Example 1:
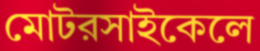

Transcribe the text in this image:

মোটরসাইকেলে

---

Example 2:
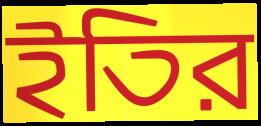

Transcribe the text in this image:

ইতির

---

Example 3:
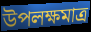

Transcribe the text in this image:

উপলক্ষমাত্র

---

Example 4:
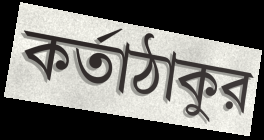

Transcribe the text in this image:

কর্তাঠাকুর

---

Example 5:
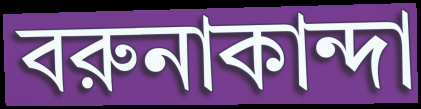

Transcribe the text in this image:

বরুনাকান্দা